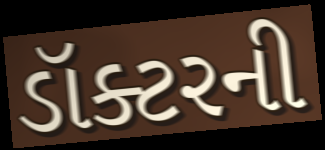
ડૉક્ટરની